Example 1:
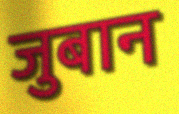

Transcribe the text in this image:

जुबान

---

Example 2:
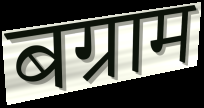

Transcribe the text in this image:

बग्राम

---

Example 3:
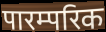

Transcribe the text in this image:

पारम्परिक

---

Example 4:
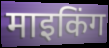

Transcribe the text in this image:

माइकिंग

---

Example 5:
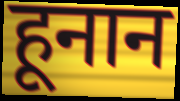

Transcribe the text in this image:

हूनान